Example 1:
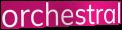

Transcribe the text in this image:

orchestral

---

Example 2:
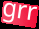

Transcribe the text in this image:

grr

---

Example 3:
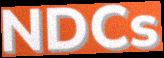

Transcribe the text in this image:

NDCs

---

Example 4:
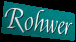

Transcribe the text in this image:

Rohwer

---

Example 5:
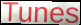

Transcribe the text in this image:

Tunes